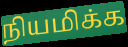
நியமிக்க